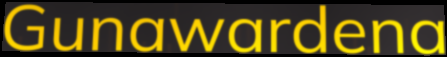
Gunawardena